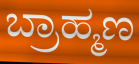
ಬ್ರಾಹ್ಮಣ